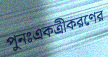
পুনঃএকত্রীকরণের